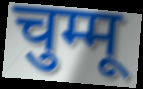
चुम्मू